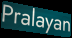
Pralayan